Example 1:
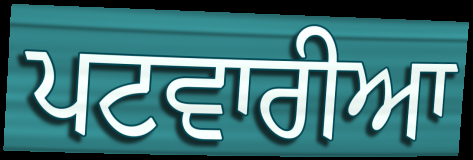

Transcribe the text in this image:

ਪਟਵਾਰੀਆ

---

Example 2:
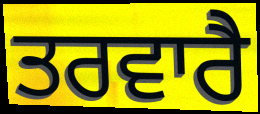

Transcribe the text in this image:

ਤਰਵਾਰੈ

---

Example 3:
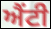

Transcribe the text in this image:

ਐਂਟੀ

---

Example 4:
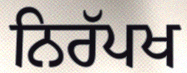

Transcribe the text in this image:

ਨਿਰੱਪਖ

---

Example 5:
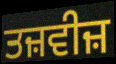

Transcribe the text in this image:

ਤਜ਼ਵੀਜ਼